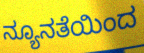
ನ್ಯೂನತೆಯಿಂದ